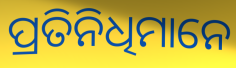
ପ୍ରତିନିଧିମାନେ